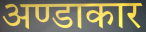
अण्डाकार